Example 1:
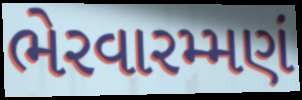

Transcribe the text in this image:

ભેરવારમ્મણં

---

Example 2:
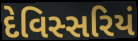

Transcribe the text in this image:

દેવિસ્સરિયં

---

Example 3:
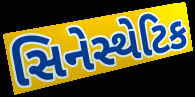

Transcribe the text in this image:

સિનેસ્થેટિક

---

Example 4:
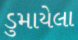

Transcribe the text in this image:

ડુમાયેલા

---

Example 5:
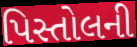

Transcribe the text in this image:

પિસ્તોલની